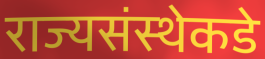
राज्यसंस्थेकडे